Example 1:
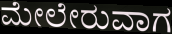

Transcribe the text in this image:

ಮೇಲೇರುವಾಗ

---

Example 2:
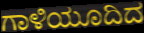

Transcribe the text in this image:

ಗಾಳಿಯೂದಿದ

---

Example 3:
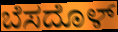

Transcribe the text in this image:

ಬೆಸದೊಳ್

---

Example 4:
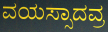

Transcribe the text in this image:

ವಯಸ್ಸಾದವ್ರ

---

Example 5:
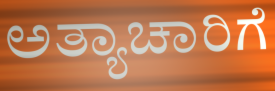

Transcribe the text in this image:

ಅತ್ಯಾಚಾರಿಗೆ